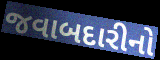
જવાબદારીનો